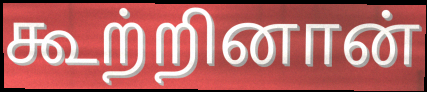
கூற்றினான்